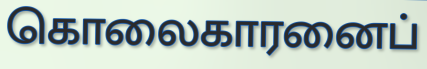
கொலைகாரனைப்